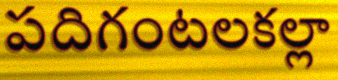
పదిగంటలకల్లా